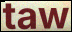
taw